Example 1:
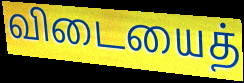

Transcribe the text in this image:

விடையைத்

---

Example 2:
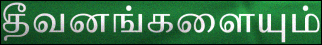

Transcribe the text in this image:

தீவனங்களையும்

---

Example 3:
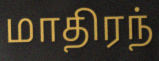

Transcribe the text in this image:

மாதிரந்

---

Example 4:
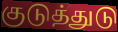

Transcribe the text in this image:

குடுத்துடு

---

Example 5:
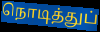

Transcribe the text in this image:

நொடித்துப்